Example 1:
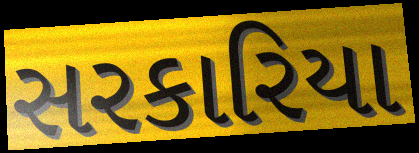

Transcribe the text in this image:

સરકારિયા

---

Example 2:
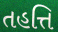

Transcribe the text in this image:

તહત્તિ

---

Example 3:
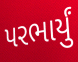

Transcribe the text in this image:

પરભાર્યું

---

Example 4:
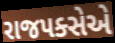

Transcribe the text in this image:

રાજપક્સેએ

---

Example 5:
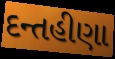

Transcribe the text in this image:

દન્તહીણા